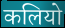
कलियो